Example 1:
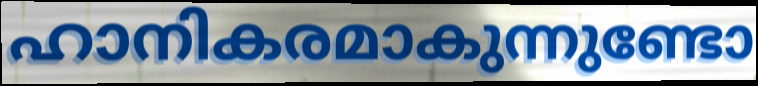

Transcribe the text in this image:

ഹാനികരമാകുന്നുണ്ടോ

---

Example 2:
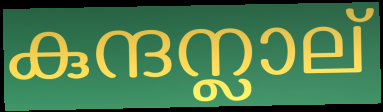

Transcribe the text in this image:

കുന്ദന്ലാല്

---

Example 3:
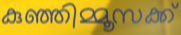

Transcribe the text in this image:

കുഞ്ഞിമ്മൂസക്ക്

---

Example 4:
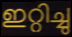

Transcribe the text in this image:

ഇറ്റിച്ചു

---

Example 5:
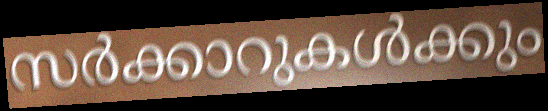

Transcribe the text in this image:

സർക്കാറുകൾക്കും